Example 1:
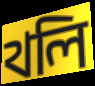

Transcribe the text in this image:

থলি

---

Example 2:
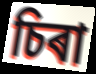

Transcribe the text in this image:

চিৰা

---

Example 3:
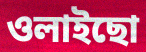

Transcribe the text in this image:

ওলাইছো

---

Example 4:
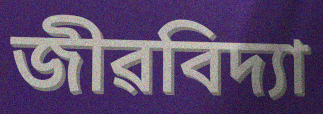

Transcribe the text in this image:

জীৱবিদ্যা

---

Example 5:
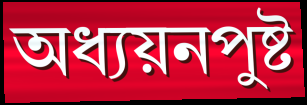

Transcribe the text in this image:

অধ্যয়নপুষ্ট